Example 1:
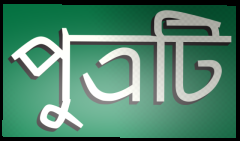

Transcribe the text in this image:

পুত্রটি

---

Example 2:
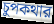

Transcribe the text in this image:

চুপকথার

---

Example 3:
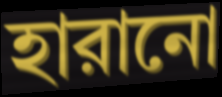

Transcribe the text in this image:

হারানো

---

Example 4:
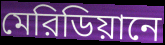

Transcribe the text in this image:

মেরিডিয়ানে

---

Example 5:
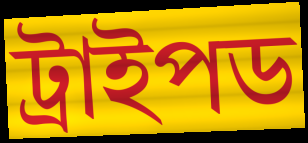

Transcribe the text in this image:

ট্রাইপড